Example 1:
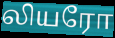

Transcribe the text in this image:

லியரோ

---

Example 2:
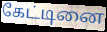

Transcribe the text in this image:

கேட்டினை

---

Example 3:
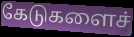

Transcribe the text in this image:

கேடுகளைச்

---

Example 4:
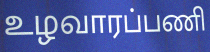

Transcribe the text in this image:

உழவாரப்பணி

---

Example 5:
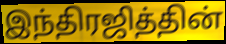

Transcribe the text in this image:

இந்திரஜித்தின்